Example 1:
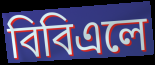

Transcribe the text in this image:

বিবিএলে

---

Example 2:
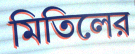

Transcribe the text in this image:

মিতিলের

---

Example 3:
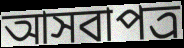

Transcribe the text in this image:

আসবাপত্র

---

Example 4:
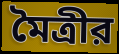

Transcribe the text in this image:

মৈত্রীর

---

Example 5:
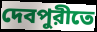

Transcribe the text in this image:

দেবপুরীতে